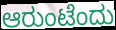
ಆರುಂಟೆಂದು